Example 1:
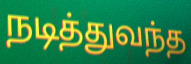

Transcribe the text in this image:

நடித்துவந்த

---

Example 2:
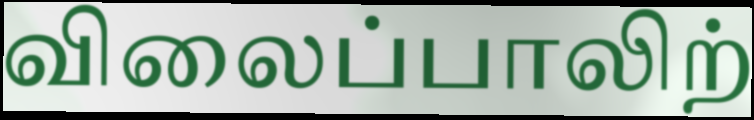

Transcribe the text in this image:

விலைப்பாலிற்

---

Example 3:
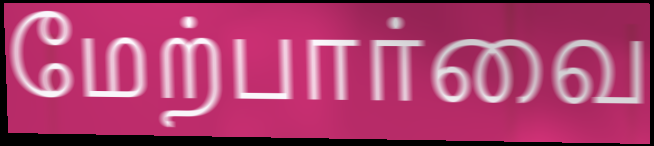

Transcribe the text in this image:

மேற்பார்வை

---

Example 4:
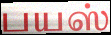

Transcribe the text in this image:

பயஸ்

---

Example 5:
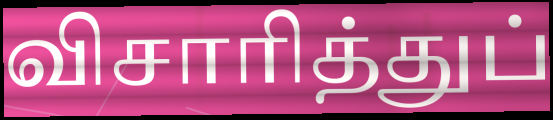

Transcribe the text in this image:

விசாரித்துப்